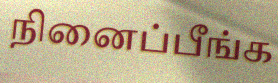
நினைப்பீங்க